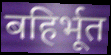
बहिर्भूत